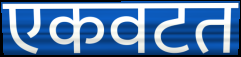
एकवटत